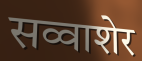
सव्वाशेर